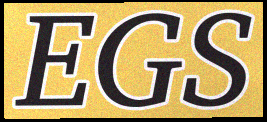
EGS